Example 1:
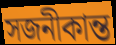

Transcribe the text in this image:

সজনীকান্ত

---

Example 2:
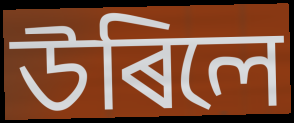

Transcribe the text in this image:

উৰিলে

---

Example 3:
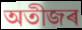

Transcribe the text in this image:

অতীজৰ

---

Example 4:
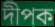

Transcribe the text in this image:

দীপক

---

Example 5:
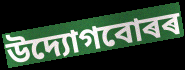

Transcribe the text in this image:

উদ্যোগবোৰৰ